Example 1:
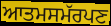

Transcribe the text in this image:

ਆਤਮਸਮੱਰਪਣ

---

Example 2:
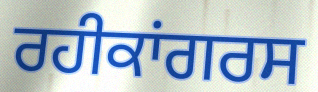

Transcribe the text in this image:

ਰਹੀਕਾਂਗਰਸ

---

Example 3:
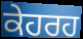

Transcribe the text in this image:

ਕੇਹਰਹ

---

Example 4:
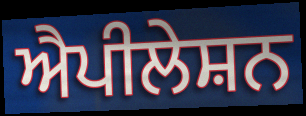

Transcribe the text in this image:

ਐਪੀਲੇਸ਼ਨ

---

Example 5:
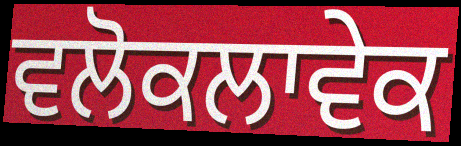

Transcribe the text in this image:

ਵਲੋਕਲਾਵੇਕ